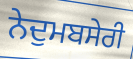
ਨੇਦੁਮਬਸੇਰੀ